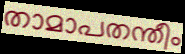
താമാപതന്തീം